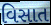
વિસાત